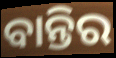
ବାନ୍ତିର